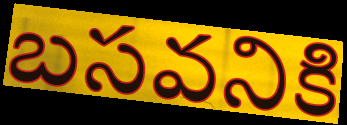
బసవనికి